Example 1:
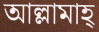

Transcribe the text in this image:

আল্লামাহ্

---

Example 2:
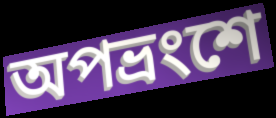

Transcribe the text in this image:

অপভ্রংশে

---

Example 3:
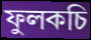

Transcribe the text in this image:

ফুলকচি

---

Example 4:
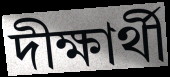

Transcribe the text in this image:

দীক্ষার্থী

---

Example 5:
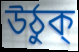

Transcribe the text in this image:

উঠুক্